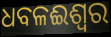
ଧବଳଈଶ୍ବର